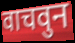
वाचवुन